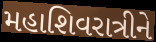
મહાશિવરાત્રીને